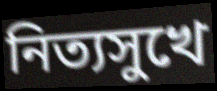
নিত্যসুখে